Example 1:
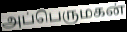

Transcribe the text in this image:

அப்பெருமகன்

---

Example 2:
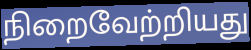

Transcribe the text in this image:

நிறைவேற்றியது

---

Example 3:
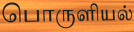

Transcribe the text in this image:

பொருளியல்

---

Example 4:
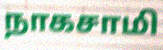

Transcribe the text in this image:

நாகசாமி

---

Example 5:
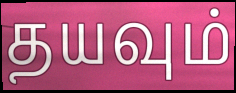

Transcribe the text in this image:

தயவும்